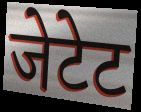
जेटेट